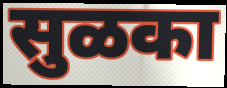
सुळका